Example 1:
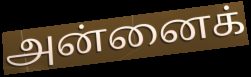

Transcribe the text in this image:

அன்னைக்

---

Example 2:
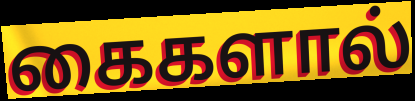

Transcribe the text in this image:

கைகளால்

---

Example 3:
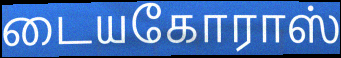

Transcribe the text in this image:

டையகோராஸ்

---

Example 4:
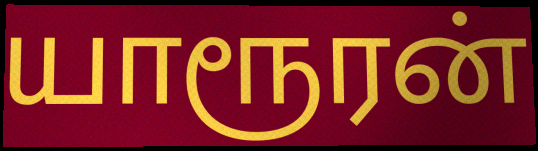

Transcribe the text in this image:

யாரூரன்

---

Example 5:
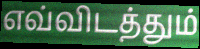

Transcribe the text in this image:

எவ்விடத்தும்